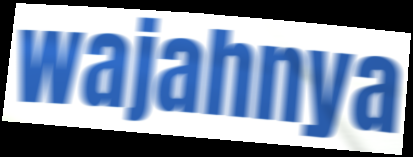
wajahnya